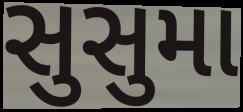
સુસુમા